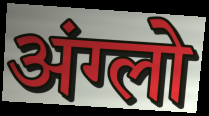
अंग्लो